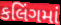
કલિંગમાં